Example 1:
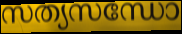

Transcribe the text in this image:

സത്യസന്ധോ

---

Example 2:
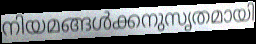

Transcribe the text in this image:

നിയമങ്ങൾക്കനുസൃതമായി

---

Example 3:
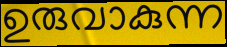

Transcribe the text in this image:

ഉരുവാകുന്ന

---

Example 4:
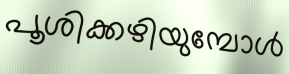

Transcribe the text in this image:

പൂശിക്കഴിയുമ്പോൾ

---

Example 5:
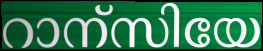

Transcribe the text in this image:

റാന്സിയേ